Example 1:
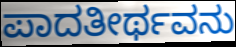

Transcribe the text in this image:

ಪಾದತೀರ್ಥವನು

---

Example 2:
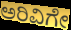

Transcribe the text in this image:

ಅರಿವಿಗೇ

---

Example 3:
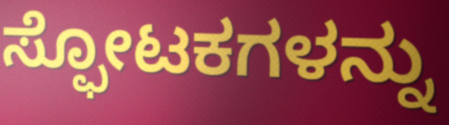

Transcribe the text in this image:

ಸ್ಫೋಟಕಗಳನ್ನು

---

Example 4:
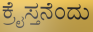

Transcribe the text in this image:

ಕ್ರೈಸ್ತನೆಂದು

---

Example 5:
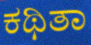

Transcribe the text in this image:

ಕಥಿತಾ